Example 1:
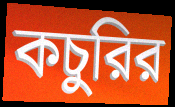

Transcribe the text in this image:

কচুরির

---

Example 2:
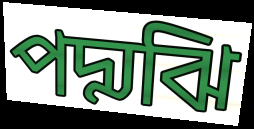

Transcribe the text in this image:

পদ্মঝি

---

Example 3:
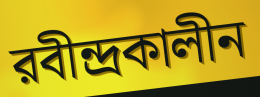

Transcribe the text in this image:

রবীন্দ্রকালীন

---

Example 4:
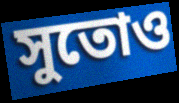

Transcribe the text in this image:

সুতোও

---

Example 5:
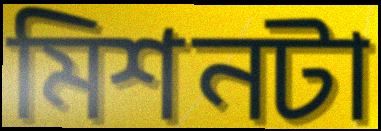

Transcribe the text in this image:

মিশনটা